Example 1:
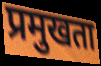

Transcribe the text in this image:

प्रमुखता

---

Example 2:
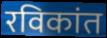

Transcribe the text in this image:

रविकांत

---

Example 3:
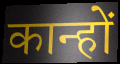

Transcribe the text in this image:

कान्हों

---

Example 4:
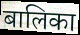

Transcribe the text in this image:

बालिका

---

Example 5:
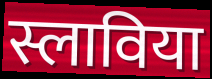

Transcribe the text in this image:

स्लाविया